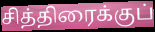
சித்திரைக்குப்